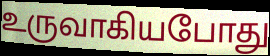
உருவாகியபோது